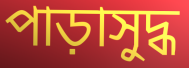
পাড়াসুদ্ধ